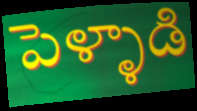
పెళ్ళాడి